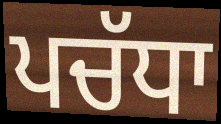
ਪਚੱਧਾ